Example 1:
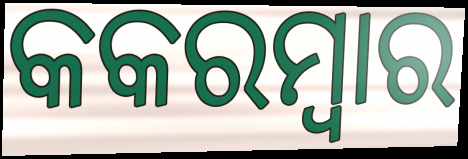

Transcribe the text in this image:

କକରମ୍ବାର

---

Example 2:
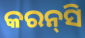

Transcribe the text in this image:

କରନ୍‌ସି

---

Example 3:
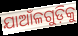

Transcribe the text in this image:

ଯାଆଁଳଗୁଡ଼ିକୁ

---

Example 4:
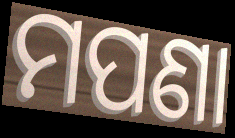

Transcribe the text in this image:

ମପଣା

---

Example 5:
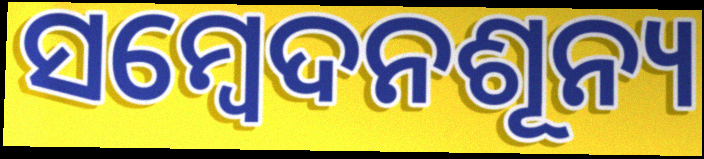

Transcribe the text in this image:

ସମ୍ବେଦନଶୂନ୍ୟ